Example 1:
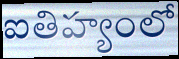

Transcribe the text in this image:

ఐతిహ్యంలో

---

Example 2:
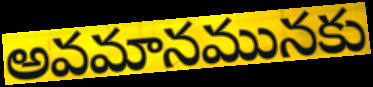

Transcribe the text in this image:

అవమానమునకు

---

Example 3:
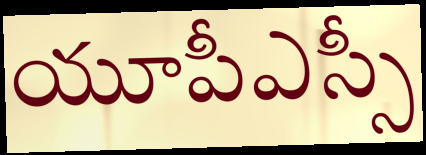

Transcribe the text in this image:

యూపీఎస్సీ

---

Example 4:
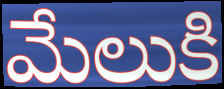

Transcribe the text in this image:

మేలుకి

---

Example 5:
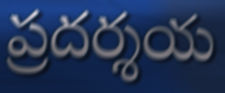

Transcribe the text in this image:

ప్రదర్శయ